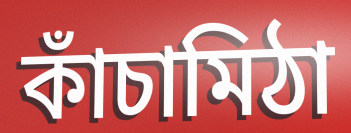
কাঁচামিঠা